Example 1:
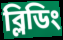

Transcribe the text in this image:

ব্লিডিং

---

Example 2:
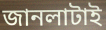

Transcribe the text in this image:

জানলাটাই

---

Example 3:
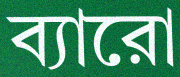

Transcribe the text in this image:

ব্যারো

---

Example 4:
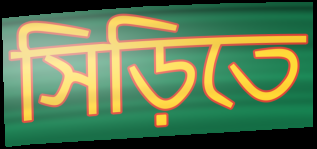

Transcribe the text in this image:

সিড়িতে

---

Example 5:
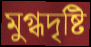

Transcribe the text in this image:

মুগ্ধদৃষ্টি